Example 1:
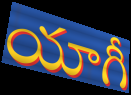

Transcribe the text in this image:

యాగీ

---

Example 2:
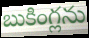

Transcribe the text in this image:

బుకింగ్లను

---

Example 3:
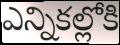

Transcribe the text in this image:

ఎన్నికల్లోకి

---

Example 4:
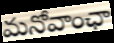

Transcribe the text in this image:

మనోవాంఛా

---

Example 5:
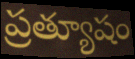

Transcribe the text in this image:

ప్రత్యూషం